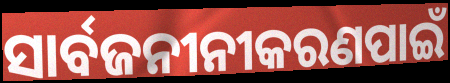
ସାର୍ବଜନୀନୀକରଣପାଇଁ